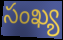
సంఖ్య